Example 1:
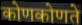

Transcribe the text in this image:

कोणकोणते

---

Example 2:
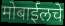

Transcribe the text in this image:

मोबाईलचे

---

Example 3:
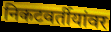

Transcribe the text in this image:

निकटवर्तीयांवर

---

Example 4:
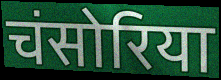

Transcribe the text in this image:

चंसोरिया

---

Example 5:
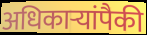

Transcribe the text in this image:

अधिकार्‍यांपैकी